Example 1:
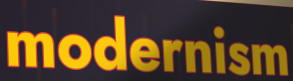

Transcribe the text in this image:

modernism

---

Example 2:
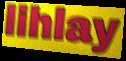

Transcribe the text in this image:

lihlay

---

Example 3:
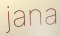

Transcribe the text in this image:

jana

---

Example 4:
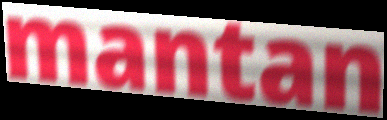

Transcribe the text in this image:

mantan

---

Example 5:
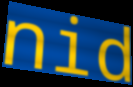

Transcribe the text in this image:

nid